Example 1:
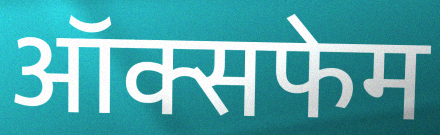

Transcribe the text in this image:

ऑक्सफेम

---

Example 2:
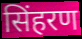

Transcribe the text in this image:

सिंहरण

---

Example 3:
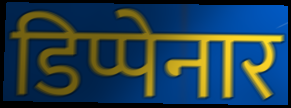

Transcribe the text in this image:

डिप्पेनार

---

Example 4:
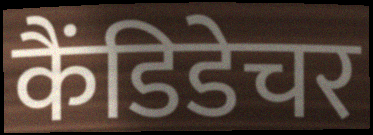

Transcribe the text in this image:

कैंडिडेचर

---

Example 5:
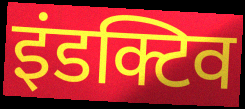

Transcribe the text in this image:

इंडक्टिव